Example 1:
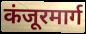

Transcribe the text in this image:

कंजूरमार्ग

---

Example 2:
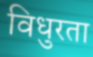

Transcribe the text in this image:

विधुरता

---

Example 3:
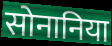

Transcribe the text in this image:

सोनानिया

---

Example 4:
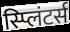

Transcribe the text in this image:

स्प्लिंटर्स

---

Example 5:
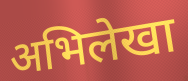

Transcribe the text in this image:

अभिलेखा